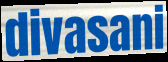
divasani